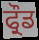
ਫ੍ਰੌਡ